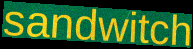
sandwitch